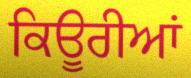
ਕਿਊਰੀਆਂ